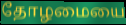
தோழமையை